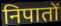
निपातों